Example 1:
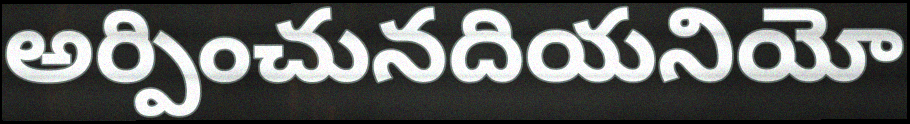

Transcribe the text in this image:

అర్పించునదియనియో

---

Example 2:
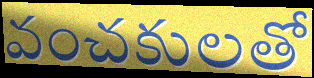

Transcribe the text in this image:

వంచకులతో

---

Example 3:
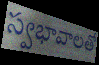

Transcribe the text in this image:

స్వభావాలతో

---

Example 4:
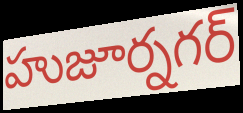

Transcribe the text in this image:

హుజూర్నగర్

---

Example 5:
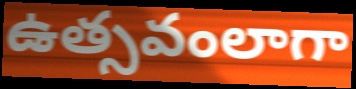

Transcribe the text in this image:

ఉత్సవంలాగా